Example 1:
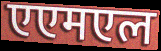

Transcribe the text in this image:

एएमएल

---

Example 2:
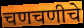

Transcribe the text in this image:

चणचणीचे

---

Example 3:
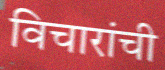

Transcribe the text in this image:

विचारांची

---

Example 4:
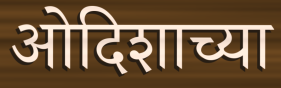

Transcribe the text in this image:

ओदिशाच्या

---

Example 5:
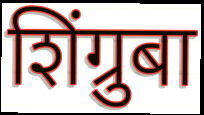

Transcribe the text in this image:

शिंग्रुबा